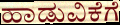
ಹಾಡುವಿಕೆಗೆ